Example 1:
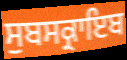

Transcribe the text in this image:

ਸੁਬਸਕ੍ਰਾਇਬ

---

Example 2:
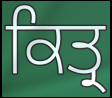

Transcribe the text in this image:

ਕਿਤ੍ਰ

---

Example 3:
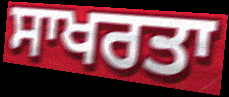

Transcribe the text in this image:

ਸਾਖਰਤਾ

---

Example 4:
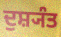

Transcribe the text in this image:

ਦੁਸ਼੍ਯੰਤ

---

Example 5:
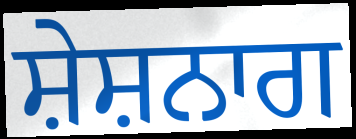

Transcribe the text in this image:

ਸ਼ੇਸ਼ਨਾਗ